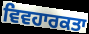
ਵਿਵਹਾਰਕਤਾ